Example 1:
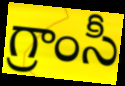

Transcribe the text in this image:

గ్రాంసీ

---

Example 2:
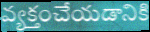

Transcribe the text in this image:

వ్యక్తంచేయడానికి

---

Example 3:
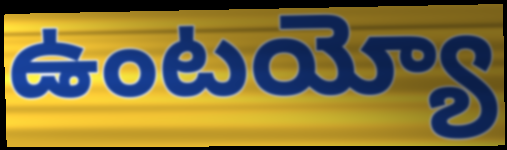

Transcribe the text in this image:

ఉంటయ్యో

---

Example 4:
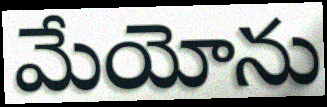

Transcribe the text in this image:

మేయోను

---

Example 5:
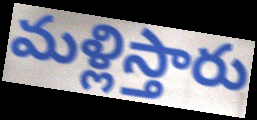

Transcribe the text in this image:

మళ్లిస్తారు